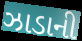
ઝાડાની